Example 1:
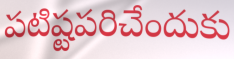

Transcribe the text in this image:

పటిష్టపరిచేందుకు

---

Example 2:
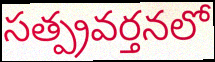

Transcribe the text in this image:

సత్ప్రవర్తనలో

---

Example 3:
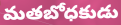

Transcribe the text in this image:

మతబోధకుడు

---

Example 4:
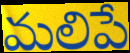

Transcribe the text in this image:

మలిపే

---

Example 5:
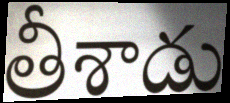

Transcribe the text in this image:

తీశాడు